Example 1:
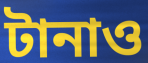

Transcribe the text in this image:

টানাও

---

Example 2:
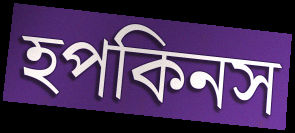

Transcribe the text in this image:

হপকিনস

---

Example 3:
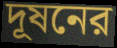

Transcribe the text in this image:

দূষনের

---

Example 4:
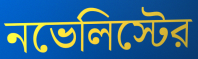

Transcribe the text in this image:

নভেলিস্টের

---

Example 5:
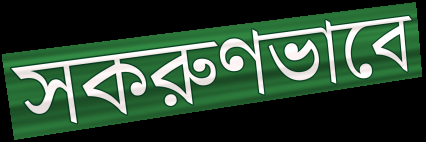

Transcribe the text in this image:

সকরুণভাবে